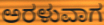
ಅರಳುವಾಗ